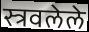
स्त्रवलेले